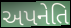
અપનેતિ